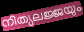
നിത്യലജ്ജയും